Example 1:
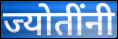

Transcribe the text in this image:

ज्योतींनी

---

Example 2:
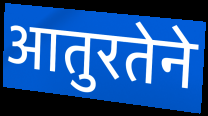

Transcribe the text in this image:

आतुरतेने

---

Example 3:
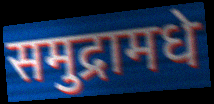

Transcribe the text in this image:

समुद्रामधे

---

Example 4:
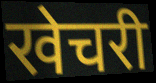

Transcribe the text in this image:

खेचरी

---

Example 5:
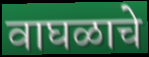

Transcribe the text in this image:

वाघळाचे